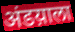
अंडय़ाला